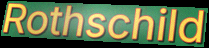
Rothschild